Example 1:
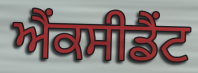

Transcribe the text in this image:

ਐਂਕਸੀਡੈਂਟ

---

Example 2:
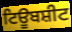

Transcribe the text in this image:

ਟਿਊਬਸ਼ੀਟ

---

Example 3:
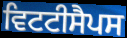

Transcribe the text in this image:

ਵਿਟਟੀਸੈਪਸ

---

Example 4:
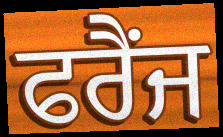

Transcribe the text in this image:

ਫਰੈਂਜ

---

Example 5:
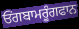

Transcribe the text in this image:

ਓਂਗਬਾਮਰੂੰਗਫਾਨ